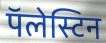
पॅलेस्टिन